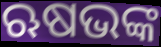
ଋଷଭଙ୍କ